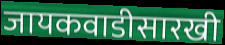
जायकवाडीसारखी